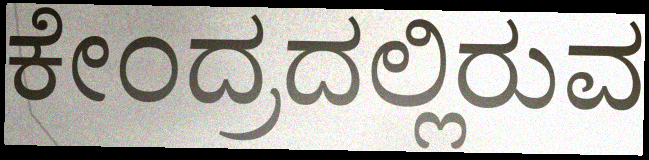
ಕೇಂದ್ರದಲ್ಲಿರುವ